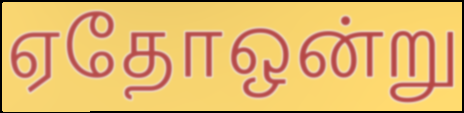
ஏதோஒன்று